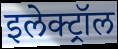
इलेक्ट्रॉल